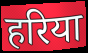
हरिया